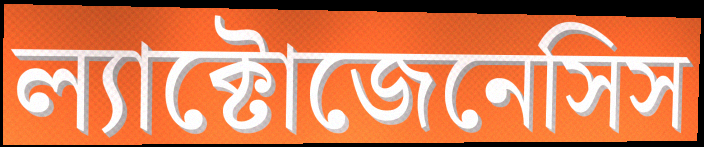
ল্যাক্টোজেনেসিস